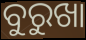
ବୁରୁଖା